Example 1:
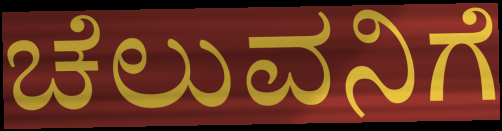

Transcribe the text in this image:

ಚೆಲುವನಿಗೆ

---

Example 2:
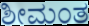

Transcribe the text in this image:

ಶೀಮಂತ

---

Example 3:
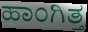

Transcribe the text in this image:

ಹಾಂಗಿತ್ತ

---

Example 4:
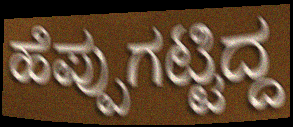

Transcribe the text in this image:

ಹೆಪ್ಪುಗಟ್ಟಿದ್ದ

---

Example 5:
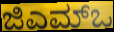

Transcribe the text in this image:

ಜಿಎಮ್ಒ